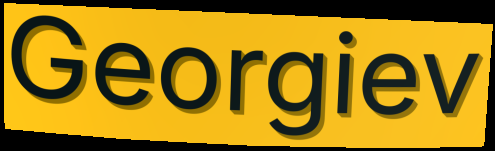
Georgiev